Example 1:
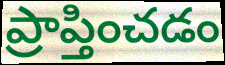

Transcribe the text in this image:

ప్రాప్తించడం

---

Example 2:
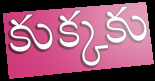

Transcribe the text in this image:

కుక్కకు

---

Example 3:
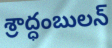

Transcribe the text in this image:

శ్రాద్ధంబులన్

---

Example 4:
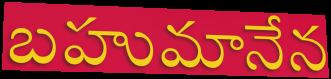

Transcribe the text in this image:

బహుమానేన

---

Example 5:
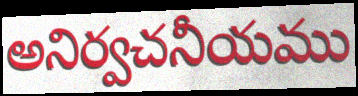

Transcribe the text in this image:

అనిర్వచనీయము